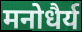
मनोधैर्य